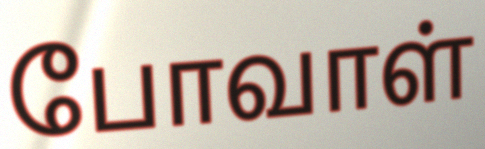
போவாள்